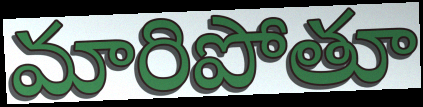
మారిపోతూ